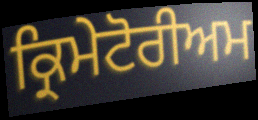
ਕ੍ਰਿਮੇਟੋਰੀਅਮ